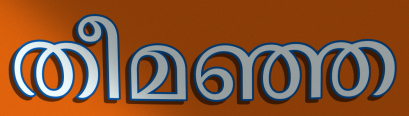
തീമഞ്ഞ